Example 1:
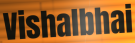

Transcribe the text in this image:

Vishalbhai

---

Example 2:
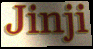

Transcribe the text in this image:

Jinji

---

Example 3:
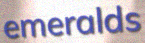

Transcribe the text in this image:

emeralds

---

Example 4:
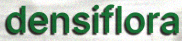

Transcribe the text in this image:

densiflora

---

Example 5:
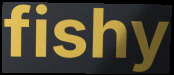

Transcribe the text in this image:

fishy